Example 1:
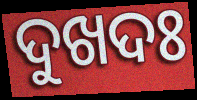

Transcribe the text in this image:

ଦୁଖଦଃ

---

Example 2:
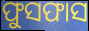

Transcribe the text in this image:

ଫୁସଫାସ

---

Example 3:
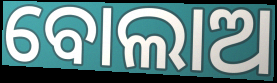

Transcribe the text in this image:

ବୋଲାଅ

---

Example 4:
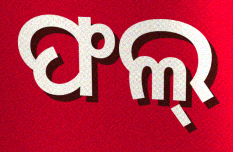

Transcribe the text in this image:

ଫଲ୍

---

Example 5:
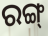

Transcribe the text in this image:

ରଙ୍ଗ୍